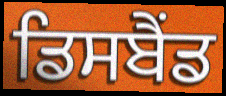
ਡਿਸਬੈਂਡ